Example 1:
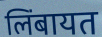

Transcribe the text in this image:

लिंबायत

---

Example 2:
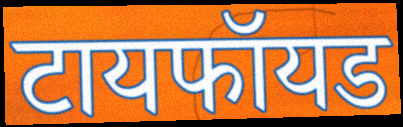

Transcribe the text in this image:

टायफॉयड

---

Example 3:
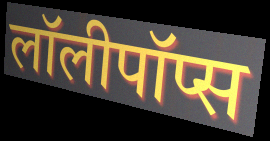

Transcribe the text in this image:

लॉलीपॉप्स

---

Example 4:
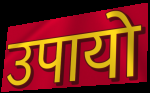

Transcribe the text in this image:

उपायो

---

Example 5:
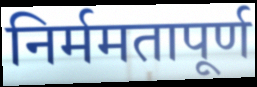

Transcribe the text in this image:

निर्ममतापूर्ण